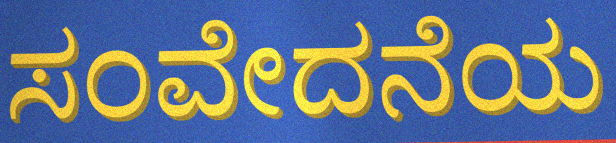
ಸಂವೇದನೆಯ